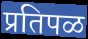
प्रतिपळ